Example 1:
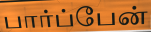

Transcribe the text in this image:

பார்ப்பேன்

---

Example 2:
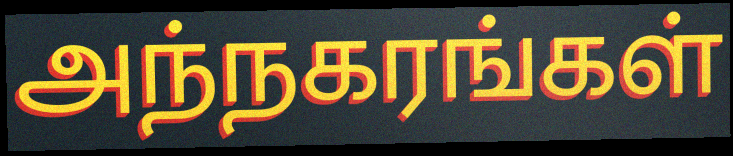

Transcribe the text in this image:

அந்நகரங்கள்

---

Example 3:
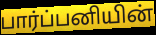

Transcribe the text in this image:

பார்ப்பனியின்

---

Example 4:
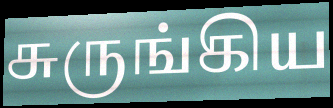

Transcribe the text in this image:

சுருங்கிய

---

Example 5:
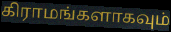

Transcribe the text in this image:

கிராமங்களாகவும்